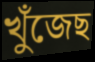
খুঁজেছ